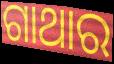
ଗାଥାର